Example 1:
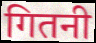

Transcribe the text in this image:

गितनी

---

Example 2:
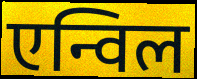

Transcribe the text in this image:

एन्विल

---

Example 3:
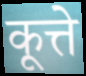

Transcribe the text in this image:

कूत्ते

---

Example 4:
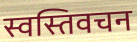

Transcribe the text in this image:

स्वस्तिवचन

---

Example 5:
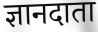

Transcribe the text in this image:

ज्ञानदाता